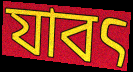
যাবৎ